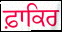
ਫ਼ਾਕਿਰ